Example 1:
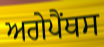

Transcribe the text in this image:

ਅਗੇਪੈਂਥਸ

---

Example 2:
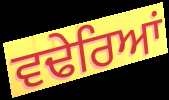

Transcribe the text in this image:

ਵਢੇਰਿਆਂ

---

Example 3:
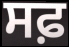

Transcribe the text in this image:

ਸਫ਼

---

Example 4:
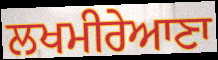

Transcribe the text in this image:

ਲਖਮੀਰੇਆਣਾ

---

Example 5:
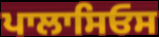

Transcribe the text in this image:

ਪਾਲਾਸਿਓਸ